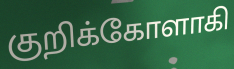
குறிக்கோளாகி